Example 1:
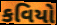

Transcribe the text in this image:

કવિયો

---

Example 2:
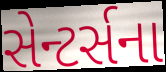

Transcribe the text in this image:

સેન્ટર્સના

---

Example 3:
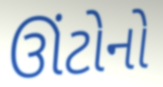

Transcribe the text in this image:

ઊંટોનો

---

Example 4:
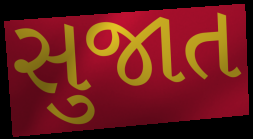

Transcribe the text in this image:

સુજાત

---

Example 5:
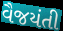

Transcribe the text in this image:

વૈજયંતી